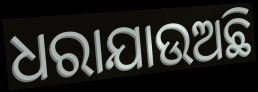
ଧରାଯାଉଅଛି